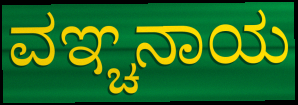
ವಞ್ಚನಾಯ